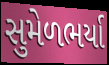
સુમેળભર્યા